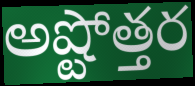
అష్టోత్తర